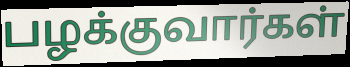
பழக்குவார்கள்